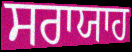
ਸਰਾਯਾਹ